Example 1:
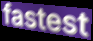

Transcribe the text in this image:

fastest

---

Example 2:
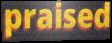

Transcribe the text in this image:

praised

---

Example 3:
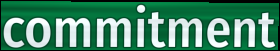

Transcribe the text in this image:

commitment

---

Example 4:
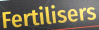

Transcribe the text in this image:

Fertilisers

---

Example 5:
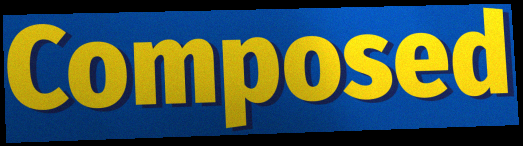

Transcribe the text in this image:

Composed